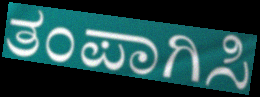
ತಂಪಾಗಿಸಿ